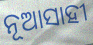
ନୂଆସାହୀ